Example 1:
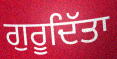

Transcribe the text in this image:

ਗੁਰੂਦਿੱਤਾ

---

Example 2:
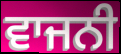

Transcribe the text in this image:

ਵਾਜਨੀ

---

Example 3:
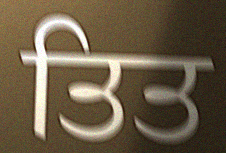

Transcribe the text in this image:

ਤਿਤ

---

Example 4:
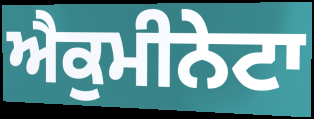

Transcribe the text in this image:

ਐਕੁਮੀਨੇਟਾ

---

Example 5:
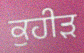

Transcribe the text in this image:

ਕੁਹੀੜ